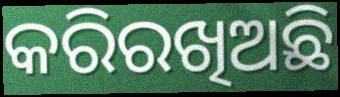
କରିରଖିଅଛି